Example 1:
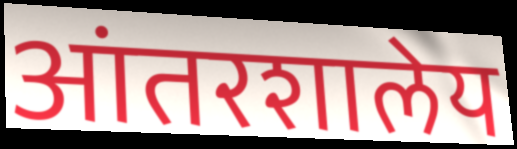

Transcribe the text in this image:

आंतरशालेय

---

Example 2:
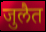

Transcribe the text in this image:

जुलैत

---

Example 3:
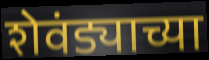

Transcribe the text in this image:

शेवंड्याच्या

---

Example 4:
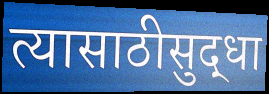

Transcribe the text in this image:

त्यासाठीसुद्धा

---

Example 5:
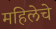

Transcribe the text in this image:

महिलेचे